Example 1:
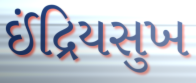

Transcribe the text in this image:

ઈંદ્રિયસુખ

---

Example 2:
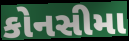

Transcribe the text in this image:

કોનસીમા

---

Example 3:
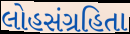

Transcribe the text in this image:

લોહસંગ્રહિતા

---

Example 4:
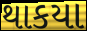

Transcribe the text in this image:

થાકયા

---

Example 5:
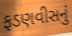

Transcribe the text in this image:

ફડણવીસનું